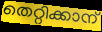
തെറ്റിക്കാന്